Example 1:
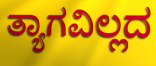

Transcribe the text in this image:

ತ್ಯಾಗವಿಲ್ಲದ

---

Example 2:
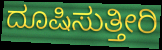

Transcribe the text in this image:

ದೂಷಿಸುತ್ತೀರಿ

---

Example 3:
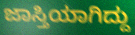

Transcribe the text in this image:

ಜಾಸ್ತಿಯಾಗಿದ್ದು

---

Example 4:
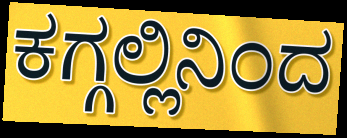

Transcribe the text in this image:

ಕಗ್ಗಲ್ಲಿನಿಂದ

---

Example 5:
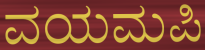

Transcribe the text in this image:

ವಯಮಪಿ